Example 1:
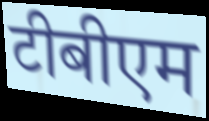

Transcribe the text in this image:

टीबीएम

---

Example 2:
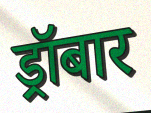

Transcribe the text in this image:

ड्रॉबार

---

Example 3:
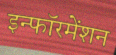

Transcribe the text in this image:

इन्फॉरमेंशन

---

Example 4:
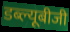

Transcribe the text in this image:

डब्ल्यूबीजी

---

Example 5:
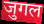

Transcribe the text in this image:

जुगल